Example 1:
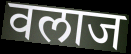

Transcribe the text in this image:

वलाज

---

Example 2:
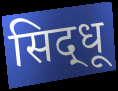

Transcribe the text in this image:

सिद्धू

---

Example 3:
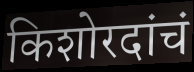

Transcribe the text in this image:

किशोरदांचं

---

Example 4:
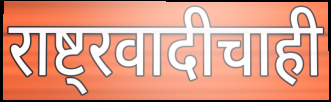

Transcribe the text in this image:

राष्ट्रवादीचाही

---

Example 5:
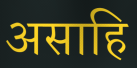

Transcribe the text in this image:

असाहि